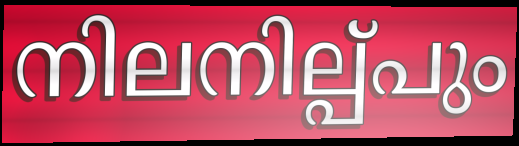
നിലനില്പ്പും